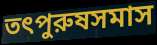
তৎপুরুষসমাস